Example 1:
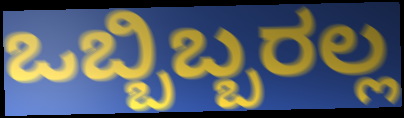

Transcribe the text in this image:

ಒಬ್ಬಿಬ್ಬರಲ್ಲ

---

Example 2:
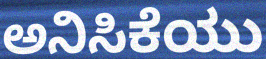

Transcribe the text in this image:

ಅನಿಸಿಕೆಯು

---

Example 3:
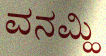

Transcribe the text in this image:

ವನಮ್ಹಿ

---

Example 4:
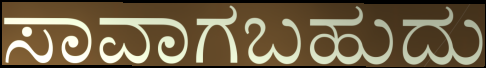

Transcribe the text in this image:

ಸಾವಾಗಬಹುದು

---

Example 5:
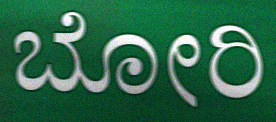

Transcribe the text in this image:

ಬೋರಿ